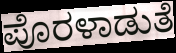
ಪೊರಳಾಡುತೆ